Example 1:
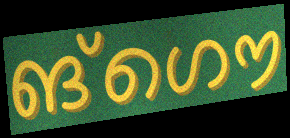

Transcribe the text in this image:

ങ്ഗൌ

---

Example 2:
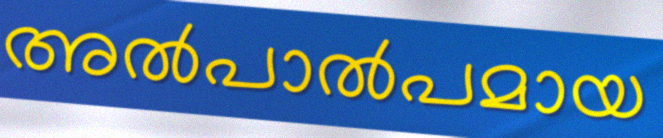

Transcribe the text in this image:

അൽപാൽപമായ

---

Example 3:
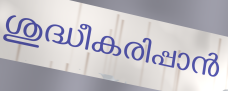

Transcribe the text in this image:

ശുദ്ധീകരിപ്പാൻ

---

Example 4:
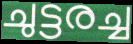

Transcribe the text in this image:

ചുട്ടരച്ച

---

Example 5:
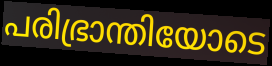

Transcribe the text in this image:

പരിഭ്രാന്തിയോടെ